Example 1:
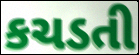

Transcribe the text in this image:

કચડતી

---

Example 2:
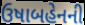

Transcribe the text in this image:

ઉષાબહેનની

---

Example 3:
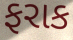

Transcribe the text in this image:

ફરાક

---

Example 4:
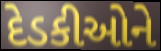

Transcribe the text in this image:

દેડકીઓને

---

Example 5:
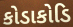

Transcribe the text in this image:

કોડાકોડિ